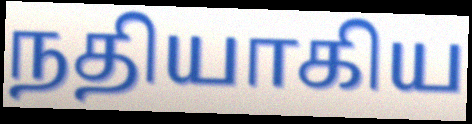
நதியாகிய